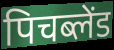
पिचब्लेंड